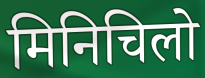
मिनिचिलो